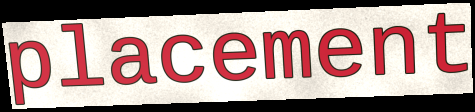
placement